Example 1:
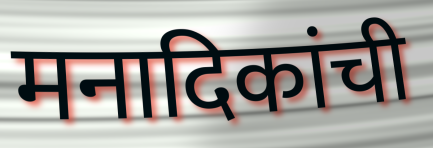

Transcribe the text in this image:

मनादिकांची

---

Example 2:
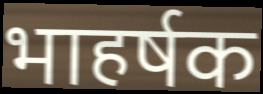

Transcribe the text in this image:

भाहर्षक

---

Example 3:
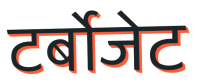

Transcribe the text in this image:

टर्बोजेट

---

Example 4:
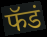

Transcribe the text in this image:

फॅडं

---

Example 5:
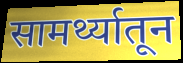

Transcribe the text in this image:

सामर्थ्यातून